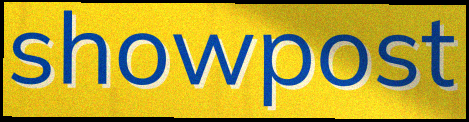
showpost